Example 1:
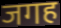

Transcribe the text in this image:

जगह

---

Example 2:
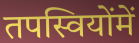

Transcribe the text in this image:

तपस्वियोंमें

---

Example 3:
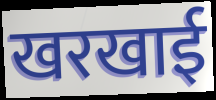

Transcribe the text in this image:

खरखाई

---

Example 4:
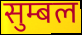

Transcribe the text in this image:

सुम्बल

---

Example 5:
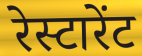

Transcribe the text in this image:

रेस्टारेंट